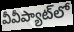
వీవీప్యాట్‌లో